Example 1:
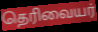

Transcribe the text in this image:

தெரிவையர்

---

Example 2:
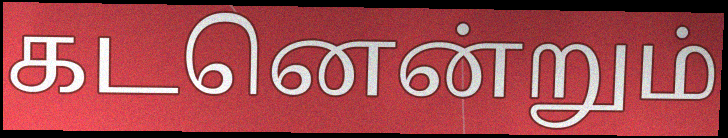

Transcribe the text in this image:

கடனென்றும்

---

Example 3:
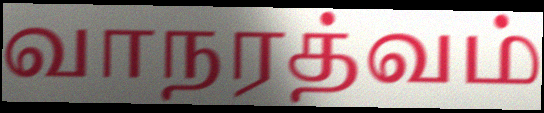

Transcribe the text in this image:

வாநரத்வம்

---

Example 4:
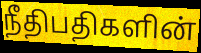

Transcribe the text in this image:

நீதிபதிகளின்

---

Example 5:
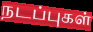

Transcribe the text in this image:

நடப்புகள்